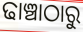
ଢାଞ୍ଚାଠାରୁ